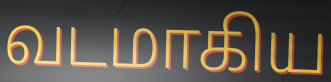
வடமாகிய